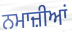
ਨਮਾਜ਼ੀਆਂ